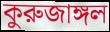
কুরুজাঙ্গল